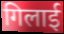
गिलाई